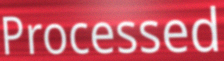
Processed